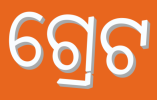
ଗ୍ରେଟ